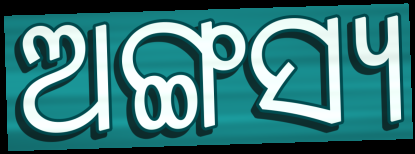
ଅଙ୍ଗସ୍ୟ